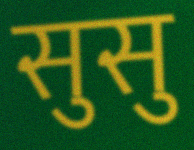
सुसु